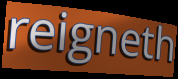
reigneth